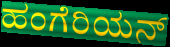
ಹಂಗೆರಿಯನ್